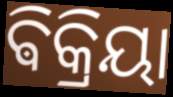
ଵିକ୍ରିୟା